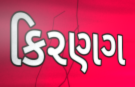
કિરણગ